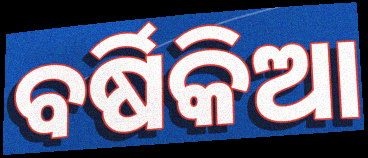
ବର୍ଷିକିଆ